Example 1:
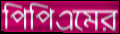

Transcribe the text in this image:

পিপিএমের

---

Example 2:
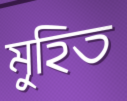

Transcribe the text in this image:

মুহিত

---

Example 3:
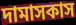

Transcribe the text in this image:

দামাসকাস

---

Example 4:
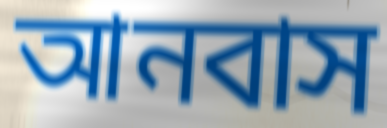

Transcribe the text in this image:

আনবাস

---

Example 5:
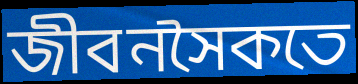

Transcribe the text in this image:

জীবনসৈকতে